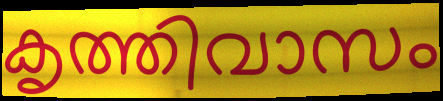
കൃത്തിവാസം